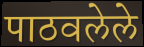
पाठवलेले